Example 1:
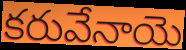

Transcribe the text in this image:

కరువేనాయె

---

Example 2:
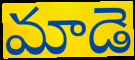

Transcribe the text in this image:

మాడె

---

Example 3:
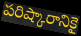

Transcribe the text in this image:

పరిష్కారానికై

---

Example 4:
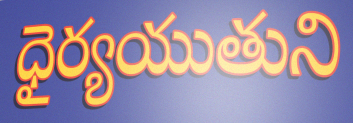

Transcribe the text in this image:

ధైర్యయుతుని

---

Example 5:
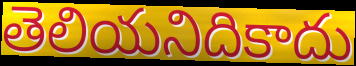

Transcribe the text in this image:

తెలియనిదికాదు